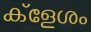
ക്ളേശം